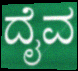
ದೈವ